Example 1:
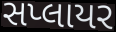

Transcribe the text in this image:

સપ્લાયર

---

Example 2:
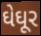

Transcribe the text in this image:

ઘેઘૂર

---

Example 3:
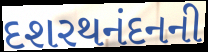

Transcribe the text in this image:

દશરથનંદનની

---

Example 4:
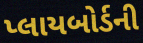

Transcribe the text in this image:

પ્લાયબોર્ડની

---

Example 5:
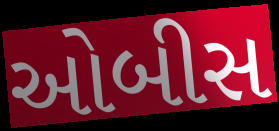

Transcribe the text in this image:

ઓબીસ